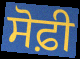
ਸੋਫ਼ੀ